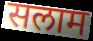
सलाम